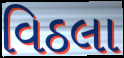
વિઠલા